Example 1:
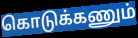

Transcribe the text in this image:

கொடுக்கணும்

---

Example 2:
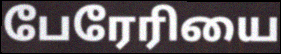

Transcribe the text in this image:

பேரேரியை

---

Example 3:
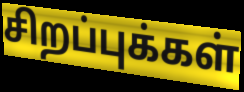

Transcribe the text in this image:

சிறப்புக்கள்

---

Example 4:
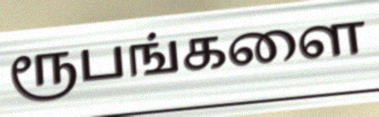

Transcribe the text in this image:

ரூபங்களை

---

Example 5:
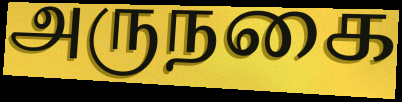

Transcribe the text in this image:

அருநகை